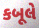
કબૂલે